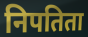
निपतिता